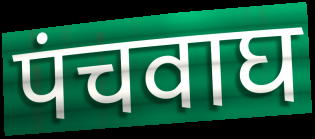
पंचवाघ